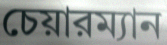
চেয়ারম্য়ান